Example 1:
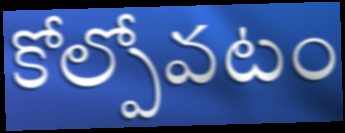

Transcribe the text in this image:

కోల్పోవటం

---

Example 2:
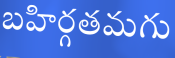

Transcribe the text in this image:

బహిర్గతమగు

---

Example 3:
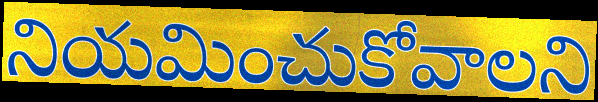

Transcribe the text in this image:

నియమించుకోవాలని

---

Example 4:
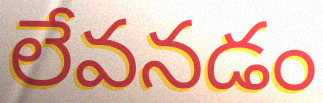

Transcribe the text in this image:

లేవనడం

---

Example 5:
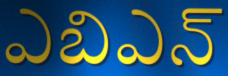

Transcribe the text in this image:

ఎబిఎన్